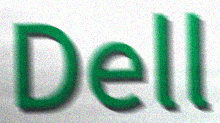
Dell